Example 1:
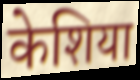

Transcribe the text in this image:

केशिया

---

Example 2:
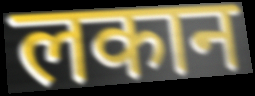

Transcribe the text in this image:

लकान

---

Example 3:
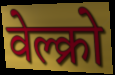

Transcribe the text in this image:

वेल्क्रो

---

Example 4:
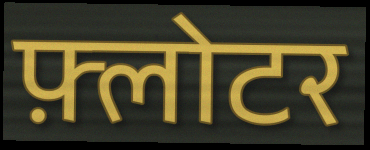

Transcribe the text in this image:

फ़्लोटर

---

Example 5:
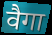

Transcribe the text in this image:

वैगा